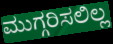
ಮುಗ್ಗರಿಸಲಿಲ್ಲ